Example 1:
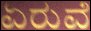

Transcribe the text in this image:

ಏರುವೆ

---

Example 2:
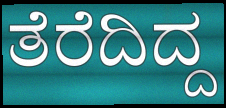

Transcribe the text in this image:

ತೆರೆದಿದ್ದ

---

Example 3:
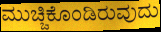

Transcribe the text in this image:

ಮುಚ್ಚಿಕೊಂಡಿರುವುದು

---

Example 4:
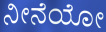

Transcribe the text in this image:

ನೀನೆಯೋ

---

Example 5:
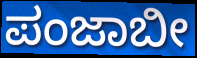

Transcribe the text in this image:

ಪಂಜಾಬೀ